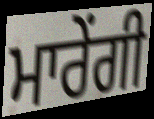
ਮਾਰੇਂਗੀ